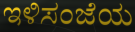
ಇಳಿಸಂಜೆಯ